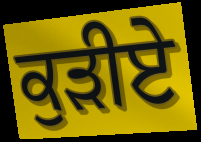
ਕੁੜੀਏ